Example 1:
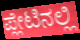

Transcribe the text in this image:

ಪ್ಲೇಟಿನಲ್ಲಿ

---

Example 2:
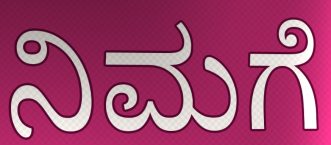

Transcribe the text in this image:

ನಿಮಗೆ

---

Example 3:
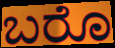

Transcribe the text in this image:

ಬರೊ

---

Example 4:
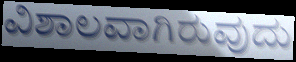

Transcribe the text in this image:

ವಿಶಾಲವಾಗಿರುವುದು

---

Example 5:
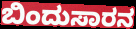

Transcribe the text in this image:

ಬಿಂದುಸಾರನ